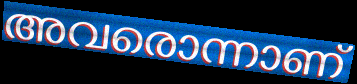
അവരൊന്നാണ്